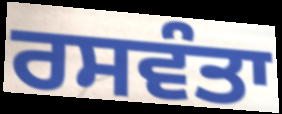
ਰਸਵੰਤਾ